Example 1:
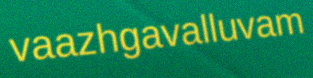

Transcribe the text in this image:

vaazhgavalluvam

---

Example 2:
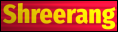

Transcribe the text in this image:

Shreerang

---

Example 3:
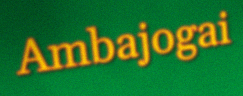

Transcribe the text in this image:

Ambajogai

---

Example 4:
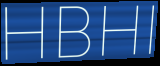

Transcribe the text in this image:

HBHI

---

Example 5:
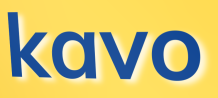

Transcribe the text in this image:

kavo